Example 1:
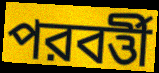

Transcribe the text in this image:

পরবর্ত্তী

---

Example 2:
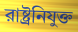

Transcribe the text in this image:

রাষ্ট্রনিযুক্ত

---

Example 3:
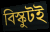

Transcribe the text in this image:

বিস্কুটই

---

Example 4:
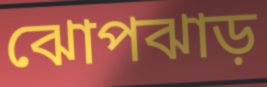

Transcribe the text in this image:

ঝোপঝাড়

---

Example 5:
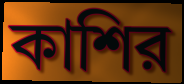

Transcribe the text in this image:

কাশির